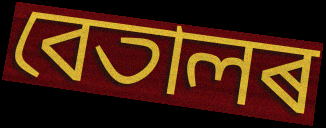
বেতালৰ